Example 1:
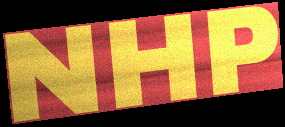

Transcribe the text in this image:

NHP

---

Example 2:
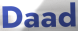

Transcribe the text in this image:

Daad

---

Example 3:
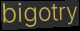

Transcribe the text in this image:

bigotry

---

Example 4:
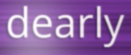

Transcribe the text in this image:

dearly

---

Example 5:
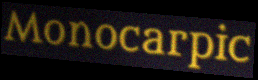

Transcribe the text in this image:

Monocarpic